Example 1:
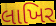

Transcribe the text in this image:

લાખિર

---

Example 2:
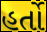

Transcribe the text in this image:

હર્તો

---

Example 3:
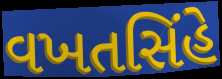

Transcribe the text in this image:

વખતસિંહે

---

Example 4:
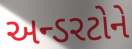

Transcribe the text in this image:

અન્ડરટોને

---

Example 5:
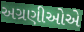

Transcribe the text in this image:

અગ્રણીઓએ